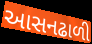
આસનઢાળી